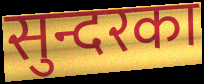
सुन्दरका